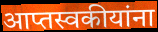
आप्तस्वकीयांना